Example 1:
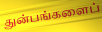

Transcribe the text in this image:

துன்பங்களைப்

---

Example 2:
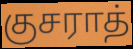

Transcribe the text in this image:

குசராத்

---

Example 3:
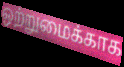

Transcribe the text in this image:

ஒற்றுமைக்காக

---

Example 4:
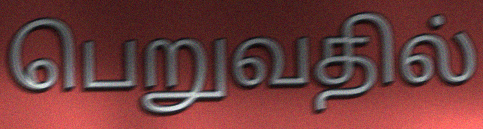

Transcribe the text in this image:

பெறுவதில்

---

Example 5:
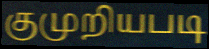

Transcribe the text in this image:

குமுறியபடி